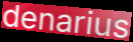
denarius